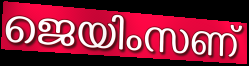
ജെയിംസണ്